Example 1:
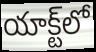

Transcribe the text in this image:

యాక్ట్‌లో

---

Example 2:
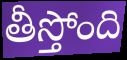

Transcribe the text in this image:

తీస్తోంది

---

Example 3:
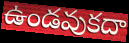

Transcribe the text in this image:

ఉండవుకదా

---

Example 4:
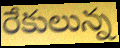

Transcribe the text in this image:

రేకులున్న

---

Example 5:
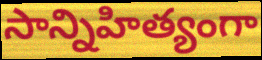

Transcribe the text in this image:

సాన్నిహిత్యంగా